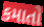
કમાતો